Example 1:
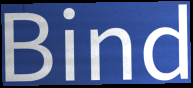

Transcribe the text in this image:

Bind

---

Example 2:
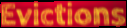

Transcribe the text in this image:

Evictions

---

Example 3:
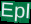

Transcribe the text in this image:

Epl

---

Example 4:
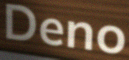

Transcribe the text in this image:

Deno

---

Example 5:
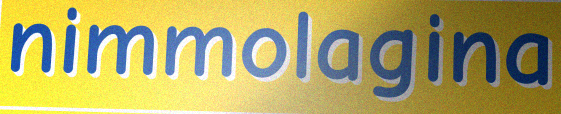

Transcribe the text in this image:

nimmolagina